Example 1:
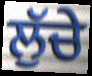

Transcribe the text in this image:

ਲੁੱਚੇ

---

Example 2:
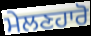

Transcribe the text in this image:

ਮੇਲਣਹਾਰੋ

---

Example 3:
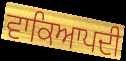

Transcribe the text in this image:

ਵਾਕਿਆਪਦੀ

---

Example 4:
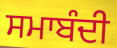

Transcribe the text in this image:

ਸਮਾਬੰਦੀ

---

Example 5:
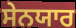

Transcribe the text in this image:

ਸੇਨਯਾਰ